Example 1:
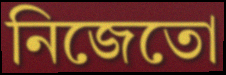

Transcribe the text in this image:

নিজেতো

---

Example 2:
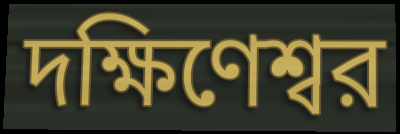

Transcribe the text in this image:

দক্ষিণেশ্বর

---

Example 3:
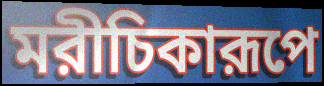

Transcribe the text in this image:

মরীচিকারূপে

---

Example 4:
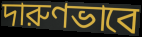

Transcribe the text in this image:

দারুণভাবে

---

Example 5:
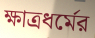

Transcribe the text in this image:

ক্ষাত্রধর্মের